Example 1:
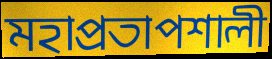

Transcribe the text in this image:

মহাপ্রতাপশালী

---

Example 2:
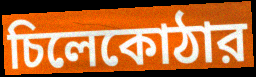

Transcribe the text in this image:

চিলেকোঠার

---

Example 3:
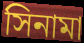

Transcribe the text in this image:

সিনামা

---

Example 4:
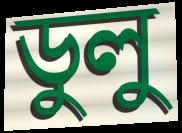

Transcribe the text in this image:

ডুলু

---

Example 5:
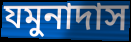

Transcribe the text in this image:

যমুনাদাস